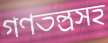
গণতন্ত্রসহ